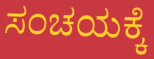
ಸಂಚಯಕ್ಕೆ